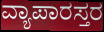
ವ್ಯಾಪಾರಸ್ತರ